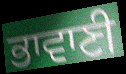
ਭਾਵਾਣੀ